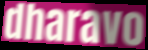
dharavo